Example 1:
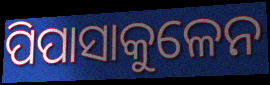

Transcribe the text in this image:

ପିପାସାକୁଳେନ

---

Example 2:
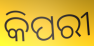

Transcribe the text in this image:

କିପରୀ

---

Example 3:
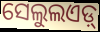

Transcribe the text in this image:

ସେଲୁଲଏଡ଼୍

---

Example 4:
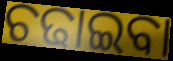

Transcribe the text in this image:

ଚଢାଇବା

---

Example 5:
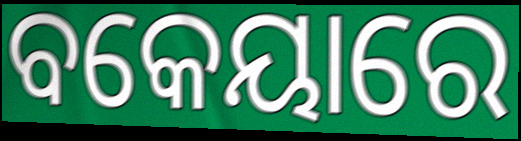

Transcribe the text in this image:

ବକେୟାରେ